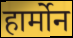
हार्मोन